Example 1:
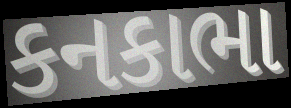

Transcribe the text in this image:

કનકાભા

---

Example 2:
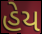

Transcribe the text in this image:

હેય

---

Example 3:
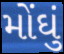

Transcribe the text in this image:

મોંઘું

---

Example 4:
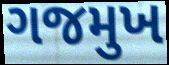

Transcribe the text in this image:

ગજમુખ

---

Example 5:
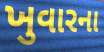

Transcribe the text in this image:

ખુવારના